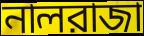
নালরাজা